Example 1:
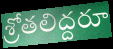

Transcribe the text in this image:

శ్రోతలిద్దరూ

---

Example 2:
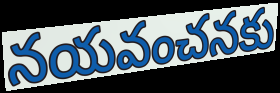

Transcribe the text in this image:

నయవంచనకు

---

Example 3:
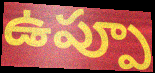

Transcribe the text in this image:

ఉప్పూ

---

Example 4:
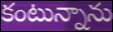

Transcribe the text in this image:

కంటున్నాను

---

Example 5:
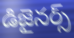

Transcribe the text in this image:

డిజైనర్స్